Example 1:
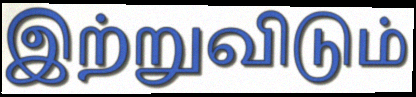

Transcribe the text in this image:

இற்றுவிடும்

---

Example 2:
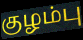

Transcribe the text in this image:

குழம்பு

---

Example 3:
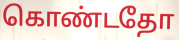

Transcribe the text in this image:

கொண்டதோ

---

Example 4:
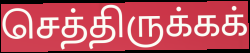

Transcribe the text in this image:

செத்திருக்கக்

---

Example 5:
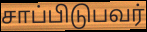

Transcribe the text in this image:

சாப்பிடுபவர்